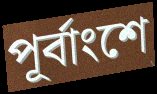
পূর্বাংশে